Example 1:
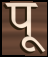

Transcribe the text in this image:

पू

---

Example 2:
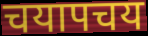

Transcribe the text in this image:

चयापचय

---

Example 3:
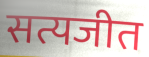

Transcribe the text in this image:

सत्यजीत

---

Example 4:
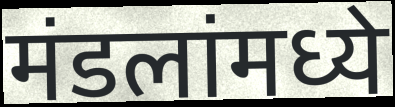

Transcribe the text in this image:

मंडलांमध्ये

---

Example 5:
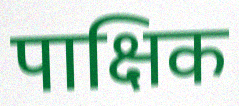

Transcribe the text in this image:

पाक्षिक